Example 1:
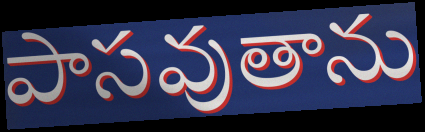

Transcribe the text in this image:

పాసవుతాను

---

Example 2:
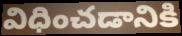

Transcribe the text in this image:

విధించడానికి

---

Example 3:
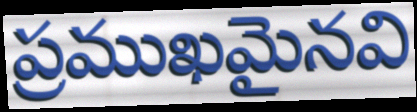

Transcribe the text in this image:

ప్రముఖమైనవి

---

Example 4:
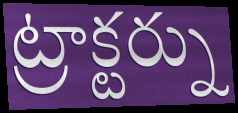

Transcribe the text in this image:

ట్రాక్టర్ను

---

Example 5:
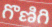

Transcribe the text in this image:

గొణిగి